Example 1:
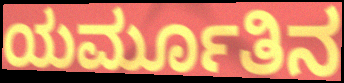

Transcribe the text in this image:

ಯರ್ಮೂತಿನ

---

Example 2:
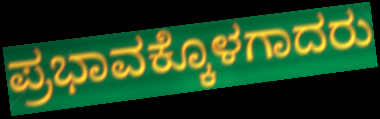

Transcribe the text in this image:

ಪ್ರಭಾವಕ್ಕೊಳಗಾದರು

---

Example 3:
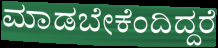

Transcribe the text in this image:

ಮಾಡಬೇಕೆಂದಿದ್ದರೆ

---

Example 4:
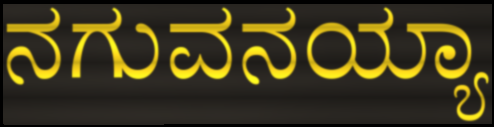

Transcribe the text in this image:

ನಗುವನಯ್ಯಾ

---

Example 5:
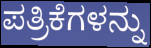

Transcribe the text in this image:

ಪತ್ರಿಕೆಗಳನ್ನು